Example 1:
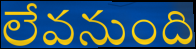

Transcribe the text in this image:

లేవనుంది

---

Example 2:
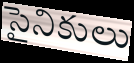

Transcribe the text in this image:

సైనికులు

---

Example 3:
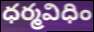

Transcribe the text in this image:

ధర్మవిధిం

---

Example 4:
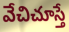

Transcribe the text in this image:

వేచిచూస్తే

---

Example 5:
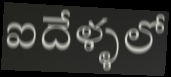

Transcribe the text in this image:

ఐదేళ్ళలో